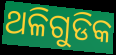
ଥଳିଗୁଡିକ